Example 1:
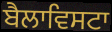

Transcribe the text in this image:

ਬੈਲਾਵਿਸਟਾ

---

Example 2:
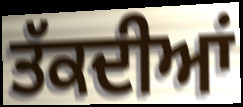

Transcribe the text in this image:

ਤੱਕਦੀਆਂ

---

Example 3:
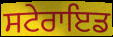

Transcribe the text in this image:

ਸਟੇਰਾਇਡ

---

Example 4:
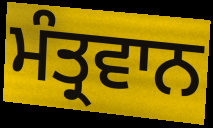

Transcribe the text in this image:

ਮੰਤ੍ਰਵਾਨ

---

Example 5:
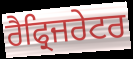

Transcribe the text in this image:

ਰੈਫ੍ਰਿਜਰੇਟਰ